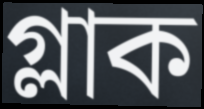
গ্লাক